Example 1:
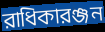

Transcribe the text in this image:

রাধিকারঞ্জন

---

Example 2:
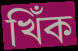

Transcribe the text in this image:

খিঁক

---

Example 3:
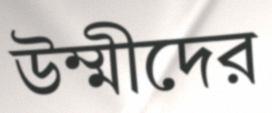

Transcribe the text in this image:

উম্মীদের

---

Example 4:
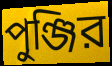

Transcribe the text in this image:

পুঞ্জির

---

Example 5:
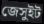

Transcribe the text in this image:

জেসুইট